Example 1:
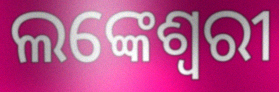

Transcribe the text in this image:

ଲଙ୍କେଶ୍ଵରୀ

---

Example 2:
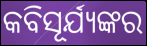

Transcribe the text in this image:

କବିସୂର୍ଯ୍ୟଙ୍କର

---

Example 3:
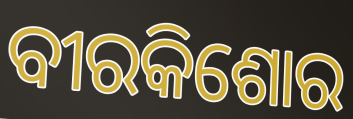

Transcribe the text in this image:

ବୀରକିଶୋର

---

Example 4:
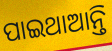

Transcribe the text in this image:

ପାଇଥାଆନ୍ତି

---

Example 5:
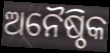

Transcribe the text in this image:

ଅନୈଷ୍ଠିକ